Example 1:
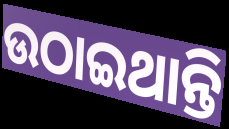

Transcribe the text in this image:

ଉଠାଇଥାନ୍ତି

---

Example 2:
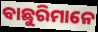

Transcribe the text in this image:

ବାଛୁରିମାନେ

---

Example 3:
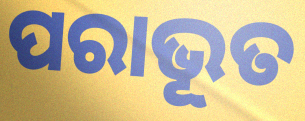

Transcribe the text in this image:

ପରାଭୂତ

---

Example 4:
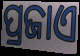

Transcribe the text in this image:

ପ୍ରଜାଏ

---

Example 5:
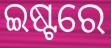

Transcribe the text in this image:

ଇଷ୍ଟରେ